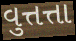
વુત્તત્તા